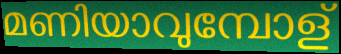
മണിയാവുമ്പോള്